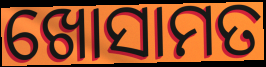
ଖୋସାମତ